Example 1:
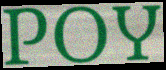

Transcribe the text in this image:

POY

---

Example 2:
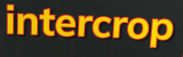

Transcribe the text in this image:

intercrop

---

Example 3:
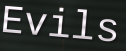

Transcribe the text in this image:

Evils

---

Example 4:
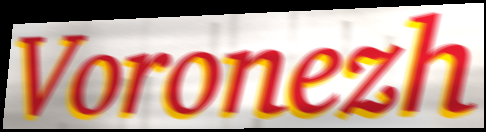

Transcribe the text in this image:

Voronezh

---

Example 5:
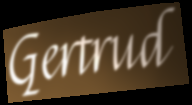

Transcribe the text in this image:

Gertrud